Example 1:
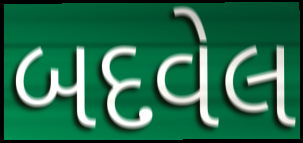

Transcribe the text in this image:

બદવેલ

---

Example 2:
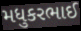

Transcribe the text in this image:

મધુકરભાઈ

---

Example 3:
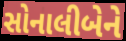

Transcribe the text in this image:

સોનાલીબેને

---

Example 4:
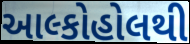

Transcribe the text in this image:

આલ્કોહોલથી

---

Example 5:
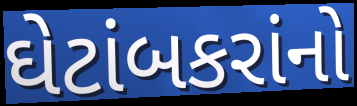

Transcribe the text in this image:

ઘેટાંબકરાંનો